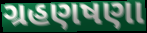
ગ્રહણષણા